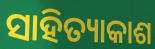
ସାହିତ୍ୟାକାଶ